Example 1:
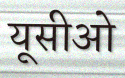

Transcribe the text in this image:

यूसीओ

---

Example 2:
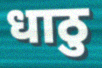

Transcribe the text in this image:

धाठु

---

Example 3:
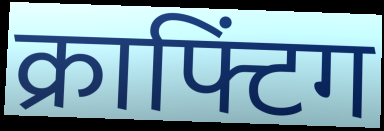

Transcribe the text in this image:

क्राफ्टिंग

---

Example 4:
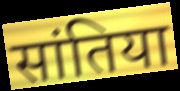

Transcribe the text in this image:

सांतिया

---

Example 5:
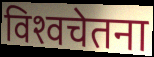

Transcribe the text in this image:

विश्वचेतना